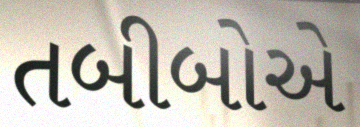
તબીબોએ